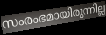
സംരംഭമായിരുന്നില്ല